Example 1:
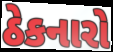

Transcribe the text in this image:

ઠેકનારો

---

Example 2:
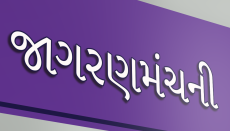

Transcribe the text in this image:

જાગરણમંચની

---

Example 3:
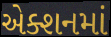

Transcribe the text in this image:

એક્શનમાં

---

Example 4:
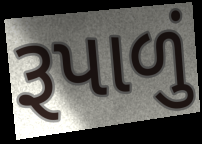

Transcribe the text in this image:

રૂપાળું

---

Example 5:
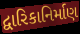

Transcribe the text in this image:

દ્વારિકાનિર્માણ